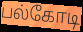
பல்கோடி